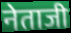
नेताजी